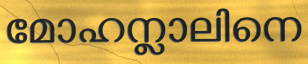
മോഹന്ലാലിനെ